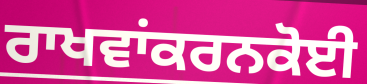
ਰਾਖਵਾਂਕਰਨਕੋਈ